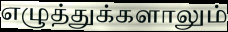
எழுத்துக்களாலும்